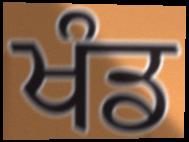
ਖੰਡ